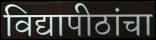
विद्यापीठांचा